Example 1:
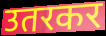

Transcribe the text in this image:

उतरकर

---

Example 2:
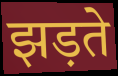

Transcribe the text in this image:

झड़ते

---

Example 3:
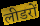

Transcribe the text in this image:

लीडरों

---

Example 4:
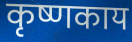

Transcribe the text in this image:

कृष्णकाय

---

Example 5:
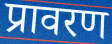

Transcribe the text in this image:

प्रावरण